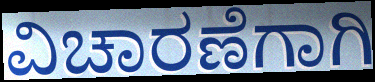
ವಿಚಾರಣೆಗಾಗಿ